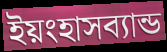
ইয়ংহাসব্যান্ড